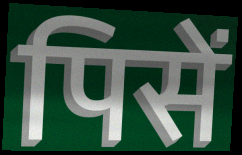
पिसें